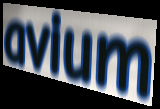
avium